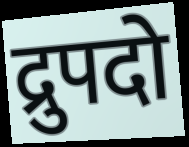
द्रुपदो